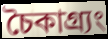
চৈকাগ্র্যং